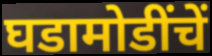
घडामोडींचें